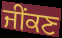
ਜੀਂਕਣ